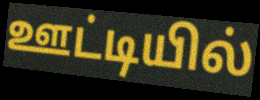
ஊட்டியில்